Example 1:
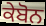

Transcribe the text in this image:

ਕੇਬੋਨ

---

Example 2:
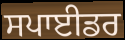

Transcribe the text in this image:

ਸਪਾਈਡਰ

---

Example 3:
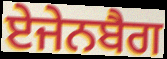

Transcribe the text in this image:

ਏਜੇਨਬੈਗ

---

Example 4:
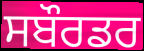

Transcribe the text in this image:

ਸਬੌਰਡਰ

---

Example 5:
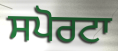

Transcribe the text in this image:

ਸਪੋਰਟਾ